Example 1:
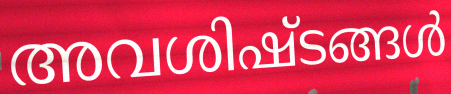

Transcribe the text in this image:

അവശിഷ്ടങ്ങൾ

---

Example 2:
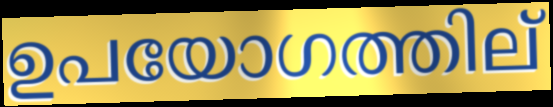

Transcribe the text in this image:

ഉപയോഗത്തില്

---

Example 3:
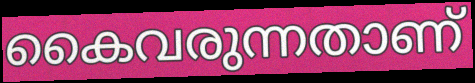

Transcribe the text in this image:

കൈവരുന്നതാണ്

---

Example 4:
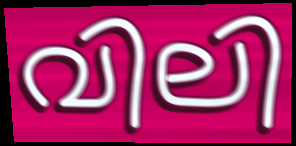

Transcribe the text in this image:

വിലി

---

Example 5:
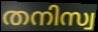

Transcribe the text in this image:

തനിസ്വ